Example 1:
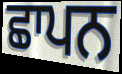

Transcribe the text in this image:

ਛਾਪਨ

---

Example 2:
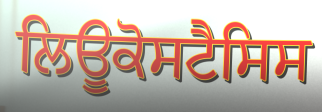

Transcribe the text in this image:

ਲਿਊਕੋਸਟੈਸਿਸ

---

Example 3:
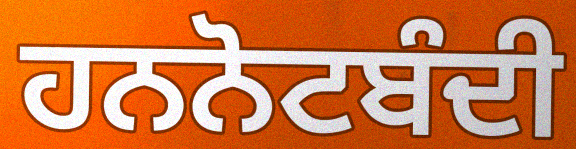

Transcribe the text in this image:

ਹਨਨੋਟਬੰਦੀ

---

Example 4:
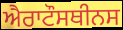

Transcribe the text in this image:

ਐਰਾਟੌਸਥੀਨਸ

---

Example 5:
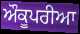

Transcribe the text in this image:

ਔਕੂਪਰੀਆ